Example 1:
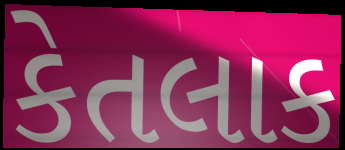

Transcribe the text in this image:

કેતલાક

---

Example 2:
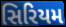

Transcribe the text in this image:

સિરિયમ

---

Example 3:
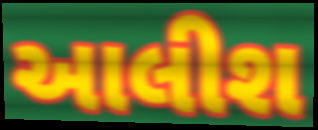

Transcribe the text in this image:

આલીશ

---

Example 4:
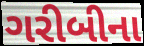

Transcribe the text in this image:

ગરીબીના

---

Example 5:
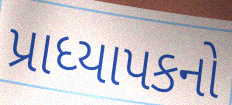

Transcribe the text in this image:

પ્રાધ્યાપકનો